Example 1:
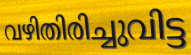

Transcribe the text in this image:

വഴിതിരിച്ചുവിട്ട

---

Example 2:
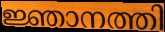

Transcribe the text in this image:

ജ്ഞാനത്തി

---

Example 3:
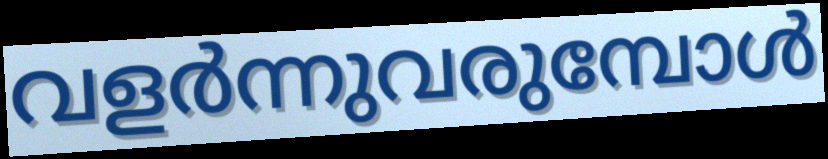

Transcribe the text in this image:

വളർന്നുവരുമ്പോൾ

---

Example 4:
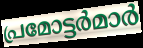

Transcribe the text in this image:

പ്രമോട്ടർമാർ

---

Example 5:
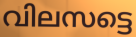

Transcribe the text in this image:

വിലസട്ടെ